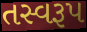
તસ્વરૂપ